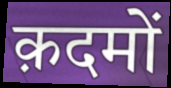
क़दमों